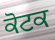
ਕੋਟਕ